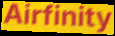
Airfinity